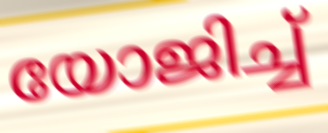
യോജിച്ച്